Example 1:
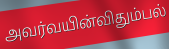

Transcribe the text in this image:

அவர்வயின்விதும்பல்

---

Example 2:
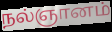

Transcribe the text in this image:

நல்ஞானம்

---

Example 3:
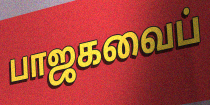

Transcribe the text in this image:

பாஜகவைப்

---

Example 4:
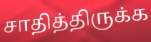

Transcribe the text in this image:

சாதித்திருக்க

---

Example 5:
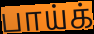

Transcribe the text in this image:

பாய்க்